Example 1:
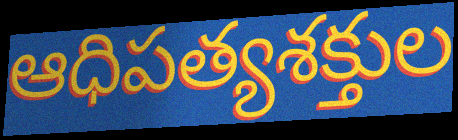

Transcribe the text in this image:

ఆధిపత్యశక్తుల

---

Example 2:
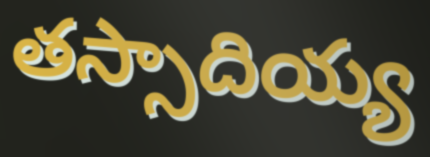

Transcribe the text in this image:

తస్సాదియ్య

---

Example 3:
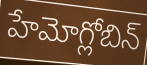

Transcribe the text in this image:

హేమోగ్లోబిన్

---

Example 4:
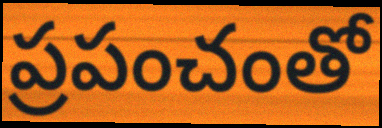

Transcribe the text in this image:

ప్రపంచంతో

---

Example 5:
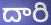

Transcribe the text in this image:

దారి